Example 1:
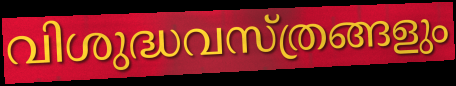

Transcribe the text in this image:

വിശുദ്ധവസ്ത്രങ്ങളും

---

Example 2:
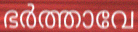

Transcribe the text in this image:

ഭർത്താവേ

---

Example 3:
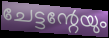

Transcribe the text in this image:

ചേട്ടന്റേയും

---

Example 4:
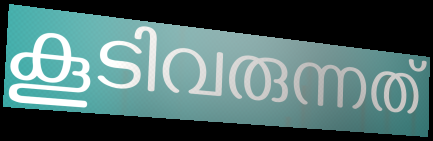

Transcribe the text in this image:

കൂടിവരുന്നത്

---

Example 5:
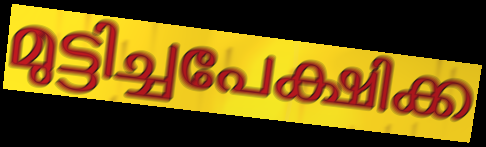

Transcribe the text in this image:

മുട്ടിച്ചപേക്ഷിക്ക